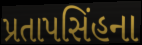
પ્રતાપસિંહના